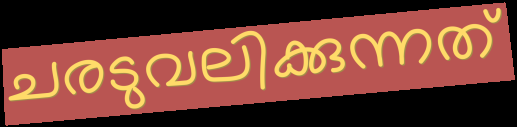
ചരടുവലിക്കുന്നത്